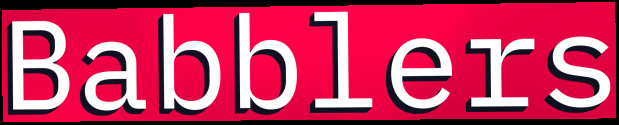
Babblers